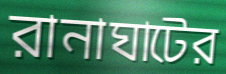
রানাঘাটের